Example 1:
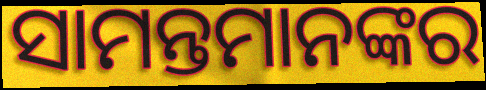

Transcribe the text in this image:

ସାମନ୍ତମାନଙ୍କର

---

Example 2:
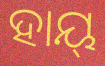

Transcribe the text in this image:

ହାୟ୍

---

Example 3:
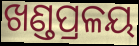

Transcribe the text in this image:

ଖଣ୍ଡପ୍ରଳୟ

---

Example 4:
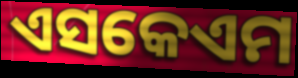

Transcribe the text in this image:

ଏସକେଏମ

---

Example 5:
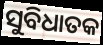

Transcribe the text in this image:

ସୁବିଧାତକ